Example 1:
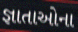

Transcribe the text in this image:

જ્ઞાતાઓના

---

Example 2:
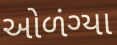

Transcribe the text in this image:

ઓળંગ્યા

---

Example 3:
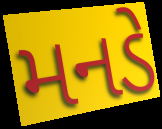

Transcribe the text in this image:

મનડે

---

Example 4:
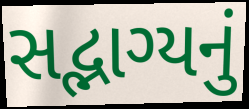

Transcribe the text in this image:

સદ્ભાગ્યનું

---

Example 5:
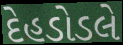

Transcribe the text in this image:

દેહડોડલે